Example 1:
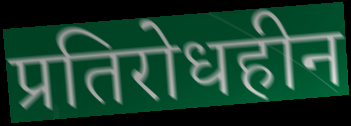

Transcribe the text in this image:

प्रतिरोधहीन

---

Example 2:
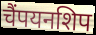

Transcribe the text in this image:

चैंपयनशिप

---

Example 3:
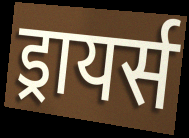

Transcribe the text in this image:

ड्रायर्स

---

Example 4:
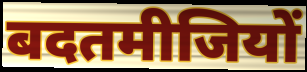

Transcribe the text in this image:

बदतमीजियों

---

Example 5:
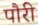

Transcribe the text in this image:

पौरी